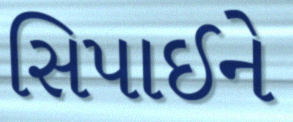
સિપાઈને